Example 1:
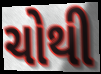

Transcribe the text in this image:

ચોથી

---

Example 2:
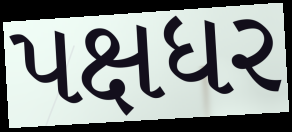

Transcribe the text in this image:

પક્ષધર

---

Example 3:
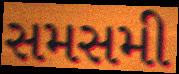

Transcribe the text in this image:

સમસમી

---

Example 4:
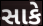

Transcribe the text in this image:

સાકે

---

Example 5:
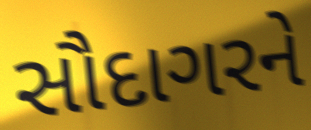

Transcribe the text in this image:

સૌદાગરને